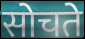
सोचते